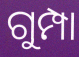
ଗୁମ୍ପା